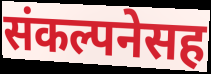
संकल्पनेसह